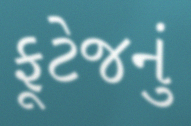
ફૂટેજનું